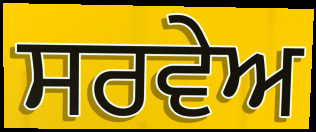
ਸਰਵੇਅ